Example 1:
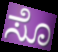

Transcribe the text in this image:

ಸೊ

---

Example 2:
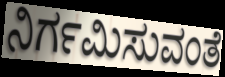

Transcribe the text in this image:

ನಿರ್ಗಮಿಸುವಂತೆ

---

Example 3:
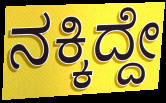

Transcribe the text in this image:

ನಕ್ಕಿದ್ದೇ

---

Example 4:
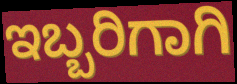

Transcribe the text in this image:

ಇಬ್ಬರಿಗಾಗಿ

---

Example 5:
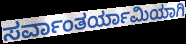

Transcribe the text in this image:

ಸರ್ವಾಂತರ್ಯಾಮಿಯಾಗಿ